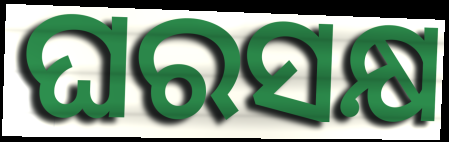
ଘରସକ୍ଷ